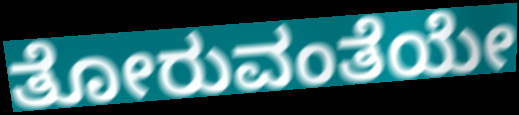
ತೋರುವಂತೆಯೇ